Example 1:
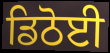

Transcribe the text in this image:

ਡਿਠੋਈ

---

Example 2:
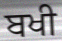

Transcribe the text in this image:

ਬਖੀ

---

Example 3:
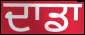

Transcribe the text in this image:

ਦਾਡਾ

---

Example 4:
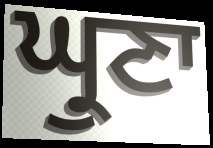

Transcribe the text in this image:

ਘ੍ਰੁਣਾ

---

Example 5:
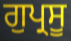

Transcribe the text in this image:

ਗੁਪ੍ਰਸੂ